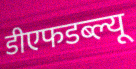
डीएफडब्ल्यू